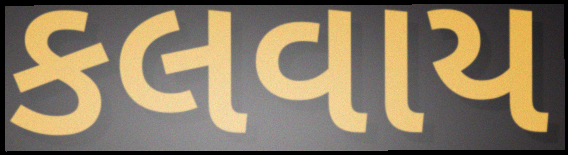
કલવાય